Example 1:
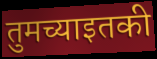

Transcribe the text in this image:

तुमच्याइतकी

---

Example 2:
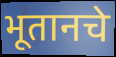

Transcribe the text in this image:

भूतानचे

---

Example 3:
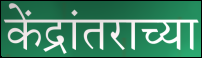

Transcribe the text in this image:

केंद्रांतराच्या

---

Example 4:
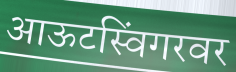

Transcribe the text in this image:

आऊटस्विंगरवर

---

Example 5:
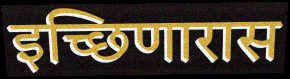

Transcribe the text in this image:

इच्छिणारास